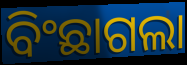
ବିଂଛାଗଲା